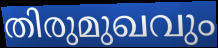
തിരുമുഖവും